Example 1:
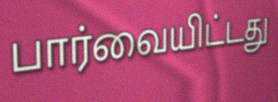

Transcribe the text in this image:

பார்வையிட்டது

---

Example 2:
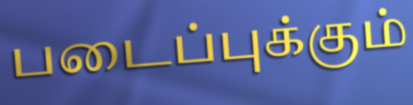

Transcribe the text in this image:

படைப்புக்கும்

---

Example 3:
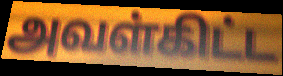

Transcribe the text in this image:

அவள்கிட்ட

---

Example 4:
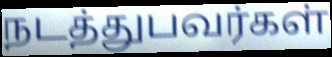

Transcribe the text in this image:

நடத்துபவர்கள்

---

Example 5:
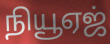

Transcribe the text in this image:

நியூஏஜ்